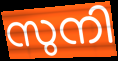
സുനി